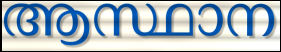
ആസ്ഥാന